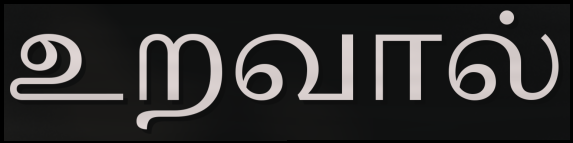
உறவால்